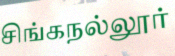
சிங்கநல்லூர்